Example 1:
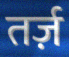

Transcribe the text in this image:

तर्ज़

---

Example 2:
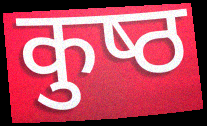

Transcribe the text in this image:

कुष्‍ठ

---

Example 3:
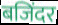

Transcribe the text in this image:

बजिंदर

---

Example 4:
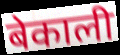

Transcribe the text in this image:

बेकाली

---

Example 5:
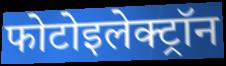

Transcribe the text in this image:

फोटोइलेक्ट्रॉन